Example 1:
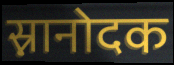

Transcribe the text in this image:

स्नानोदक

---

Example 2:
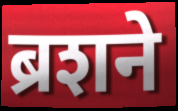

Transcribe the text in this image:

ब्रशने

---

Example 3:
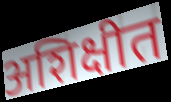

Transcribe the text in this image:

अशिक्षीत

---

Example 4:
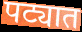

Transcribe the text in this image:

पट्यात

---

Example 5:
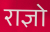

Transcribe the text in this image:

राज्ञो